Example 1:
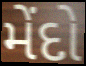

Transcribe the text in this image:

મેંદો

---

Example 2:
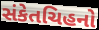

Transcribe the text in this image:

સંકેતચિહનો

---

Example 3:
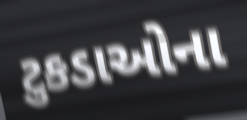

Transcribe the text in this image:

ટુકડાઓના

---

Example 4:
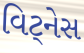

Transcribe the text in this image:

વિટ્નેસ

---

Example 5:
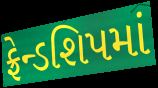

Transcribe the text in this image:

ફ્રેન્ડશિપમાં